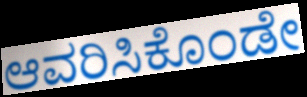
ಆವರಿಸಿಕೊಂಡೇ